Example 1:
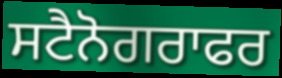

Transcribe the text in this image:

ਸਟੈਨੋਗਰਾਫਰ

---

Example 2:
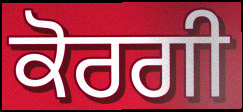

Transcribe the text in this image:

ਕੋਰਗੀ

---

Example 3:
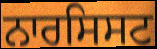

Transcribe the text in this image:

ਨਾਰਸਿਸਟ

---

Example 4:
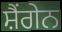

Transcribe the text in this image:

ਸ਼ੈਂਗੇਨ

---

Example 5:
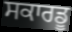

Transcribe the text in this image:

ਸਕਾਰਡੂ